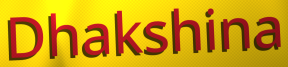
Dhakshina